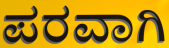
ಪರವಾಗಿ